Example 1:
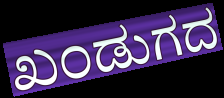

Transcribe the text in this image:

ಖಂಡುಗದ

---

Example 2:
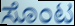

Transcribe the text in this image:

ಸೊಂಟ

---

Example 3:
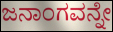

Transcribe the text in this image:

ಜನಾಂಗವನ್ನೇ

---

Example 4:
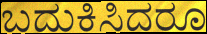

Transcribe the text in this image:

ಬದುಕಿಸಿದರೂ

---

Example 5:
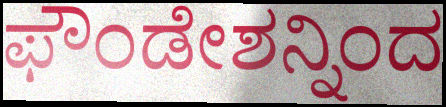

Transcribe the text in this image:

ಫೌಂಡೇಶನ್ನಿಂದ